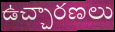
ఉచ్చారణలు